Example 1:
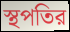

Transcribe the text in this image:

স্থপতির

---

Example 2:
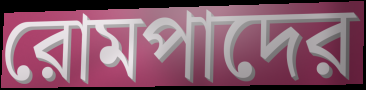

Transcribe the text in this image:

রোমপাদের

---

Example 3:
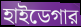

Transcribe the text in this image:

হাইডেগার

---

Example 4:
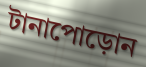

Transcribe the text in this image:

টানাপোড়োন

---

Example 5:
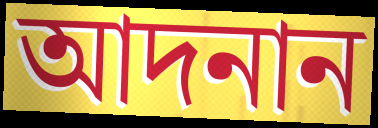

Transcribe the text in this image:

আদনান